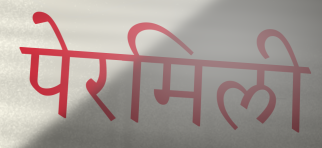
पेरमिली